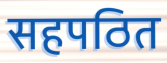
सहपठित